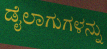
ಡೈಲಾಗುಗಳನ್ನು